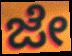
ಜೇ